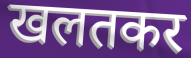
खलतकर